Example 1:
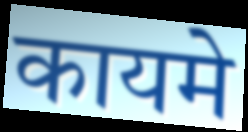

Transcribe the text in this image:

कायमे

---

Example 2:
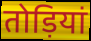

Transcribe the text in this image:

तोड़ियां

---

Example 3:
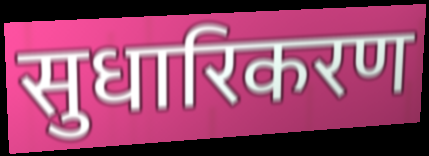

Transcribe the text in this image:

सुधारिकरण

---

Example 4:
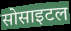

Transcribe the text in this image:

सोसाइटल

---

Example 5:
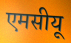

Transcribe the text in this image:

एमसीयू